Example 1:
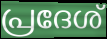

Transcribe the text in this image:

പ്രദേശ്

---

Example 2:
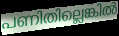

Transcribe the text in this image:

പണിതില്ലെങ്കിൽ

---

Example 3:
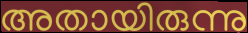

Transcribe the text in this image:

അതായിരുന്നു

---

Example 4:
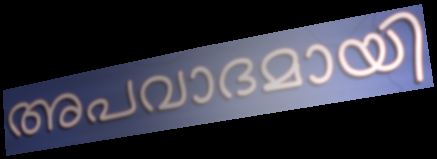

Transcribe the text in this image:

അപവാദമായി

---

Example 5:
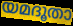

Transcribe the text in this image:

യമദൂതാ